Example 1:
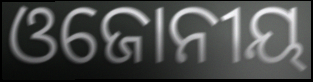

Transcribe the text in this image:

ଓଜୋନୀୟ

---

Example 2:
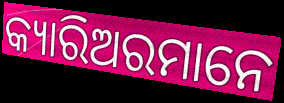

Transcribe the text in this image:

କ୍ୟାରିଅରମାନେ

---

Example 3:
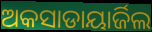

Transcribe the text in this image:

ଅକସାଡାୟାର୍ଜିଲ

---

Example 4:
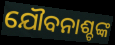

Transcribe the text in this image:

ଯୌବନାଶ୍ଚଙ୍କ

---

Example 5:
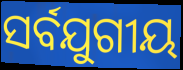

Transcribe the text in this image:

ସର୍ବଯୁଗୀୟ